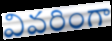
వివరింగా